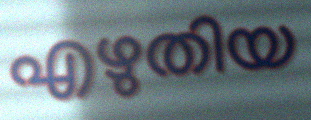
എഴുതിയ